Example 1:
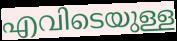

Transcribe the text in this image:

എവിടെയുള്ള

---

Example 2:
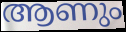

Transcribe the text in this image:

ആണും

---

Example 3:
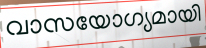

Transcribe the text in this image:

വാസയോഗ്യമായി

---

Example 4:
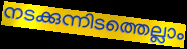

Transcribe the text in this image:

നടക്കുന്നിടത്തെല്ലാം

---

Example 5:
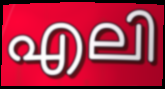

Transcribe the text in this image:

എലി